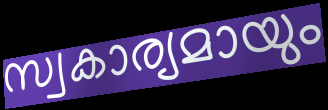
സ്വകാര്യമായും